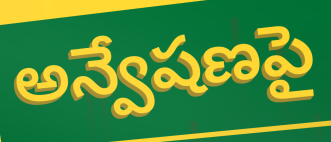
అన్వేషణపై